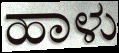
ಹಾಳು